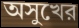
অসুখের